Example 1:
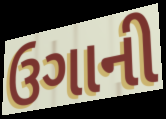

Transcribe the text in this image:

ઉગાની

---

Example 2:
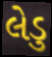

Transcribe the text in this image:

લેડુ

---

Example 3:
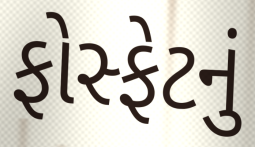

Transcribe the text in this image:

ફોસ્ફેટનું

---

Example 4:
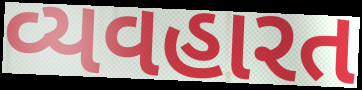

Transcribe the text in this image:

વ્યવહારત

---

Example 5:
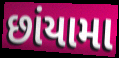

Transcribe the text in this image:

છાંયામા